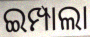
ଇମ୍ପାଲା